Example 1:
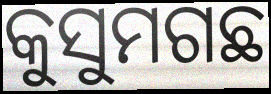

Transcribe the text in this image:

କୁସୁମଗଛ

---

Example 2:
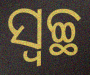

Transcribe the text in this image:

ସ୍ୱଚ୍ଛ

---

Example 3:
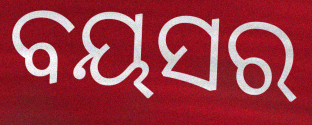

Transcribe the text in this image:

ବୟସର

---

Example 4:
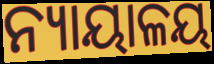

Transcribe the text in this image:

ନ୍ୟାୟାଳୟ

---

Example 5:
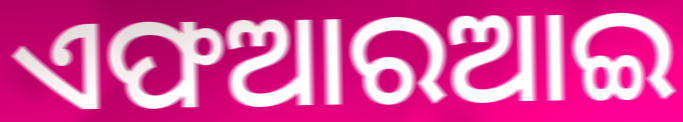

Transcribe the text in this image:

ଏଫଆରଆଇ